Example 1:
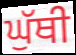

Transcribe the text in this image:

ਘੁੱਥੀ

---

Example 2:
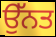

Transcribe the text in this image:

ਉੱਨਤ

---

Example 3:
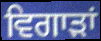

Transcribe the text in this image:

ਵਿਗਾੜਾਂ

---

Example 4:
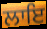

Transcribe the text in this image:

ਲਾਇ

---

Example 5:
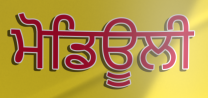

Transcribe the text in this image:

ਮੋਡਿਊਲੀ